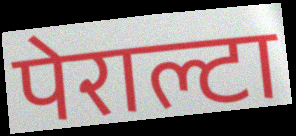
पेराल्टा